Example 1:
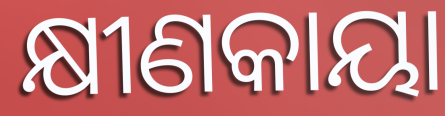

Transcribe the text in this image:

କ୍ଷୀଣକାୟା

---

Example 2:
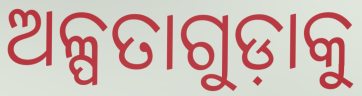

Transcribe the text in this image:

ଅଳ୍ପତାଗୁଡ଼ାକୁ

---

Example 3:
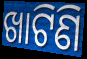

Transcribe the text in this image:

ଖାଟିଣି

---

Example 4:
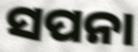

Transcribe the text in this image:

ସପନା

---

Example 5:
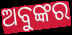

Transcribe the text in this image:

ଅବୁଙ୍କର